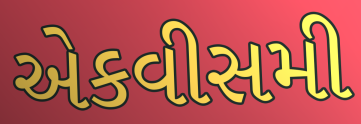
એકવીસમી